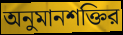
অনুমানশক্তির